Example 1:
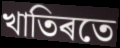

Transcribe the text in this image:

খাতিৰতে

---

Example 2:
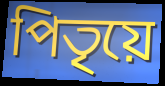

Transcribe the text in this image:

পিতৃয়ে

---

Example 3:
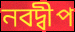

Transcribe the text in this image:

নবদ্বীপ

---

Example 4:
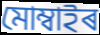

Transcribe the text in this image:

মোম্বাইৰ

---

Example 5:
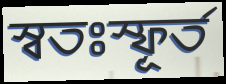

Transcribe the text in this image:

স্বতঃস্ফূৰ্ত